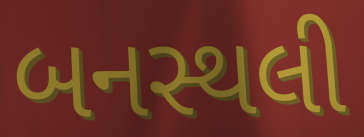
બનસ્થલી